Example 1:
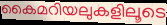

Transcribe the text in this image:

കൈമറിയലുകളിലൂടെ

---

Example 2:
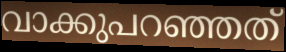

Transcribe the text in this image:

വാക്കുപറഞ്ഞത്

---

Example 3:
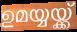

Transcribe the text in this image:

ഉമയ്യയ്ക്ക്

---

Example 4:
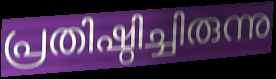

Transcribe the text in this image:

പ്രതിഷ്ഠിച്ചിരുന്നു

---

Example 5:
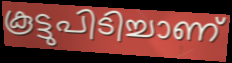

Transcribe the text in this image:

കൂട്ടുപിടിച്ചാണ്